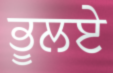
ਭੂਲਏ